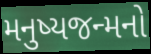
મનુષ્યજન્મનો